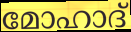
മോഹാദ്